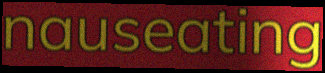
nauseating